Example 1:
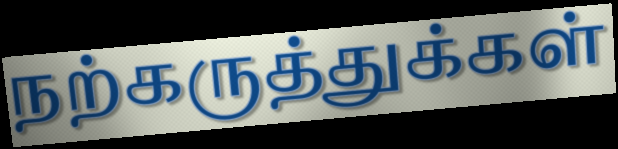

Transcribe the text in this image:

நற்கருத்துக்கள்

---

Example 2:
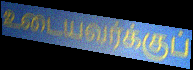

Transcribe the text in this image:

உடையவர்க்குப்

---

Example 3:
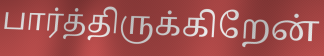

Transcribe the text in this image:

பார்த்திருக்கிறேன்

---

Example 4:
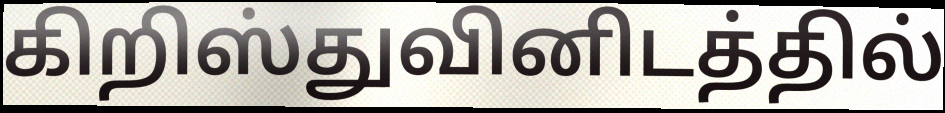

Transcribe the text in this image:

கிறிஸ்துவினிடத்தில்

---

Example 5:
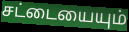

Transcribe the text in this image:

சட்டையையும்